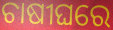
ଚାଷୀଘରେ